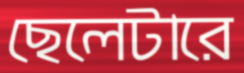
ছেলেটারে